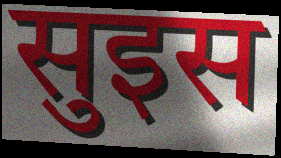
सुइस